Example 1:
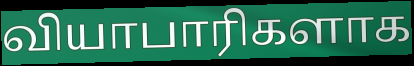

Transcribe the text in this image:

வியாபாரிகளாக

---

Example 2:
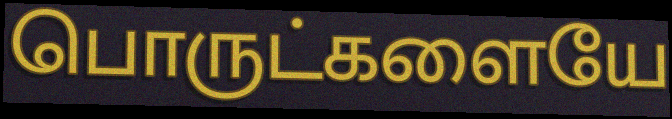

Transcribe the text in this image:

பொருட்களையே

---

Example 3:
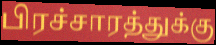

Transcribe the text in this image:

பிரச்சாரத்துக்கு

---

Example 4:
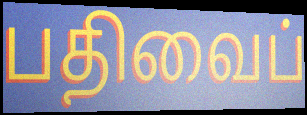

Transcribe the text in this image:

பதிவைப்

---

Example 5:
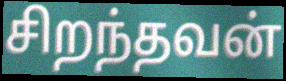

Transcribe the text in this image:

சிறந்தவன்